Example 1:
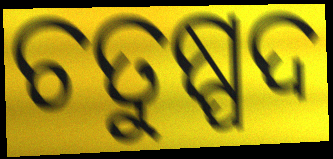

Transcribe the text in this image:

ଚତୁଷ୍ପଦ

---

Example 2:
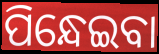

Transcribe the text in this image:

ପିନ୍ଧେଇବା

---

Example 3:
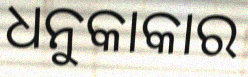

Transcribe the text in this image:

ଧନୁକାକାର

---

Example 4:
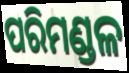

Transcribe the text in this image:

ପରିମଣ୍ଡଳ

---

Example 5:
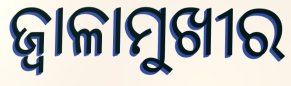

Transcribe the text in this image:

ଜ୍ୱାଳାମୁଖୀର